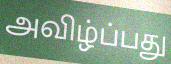
அவிழ்ப்பது